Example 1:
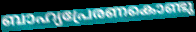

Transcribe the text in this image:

ബാഹ്യപ്രേരണകൊണ്ടു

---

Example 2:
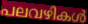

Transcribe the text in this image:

പലവഴികൾ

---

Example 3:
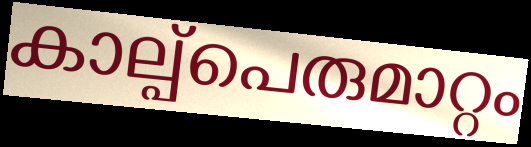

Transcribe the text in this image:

കാല്പ്പെരുമാറ്റം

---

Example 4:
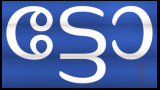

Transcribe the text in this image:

ട്ടോ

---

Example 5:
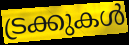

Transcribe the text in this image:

ട്രക്കുകൾ